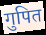
गुपित